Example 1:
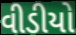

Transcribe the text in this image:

વીડીયો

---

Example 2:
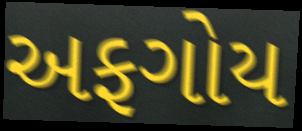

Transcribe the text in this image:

અફગોય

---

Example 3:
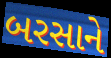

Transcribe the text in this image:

બરસાને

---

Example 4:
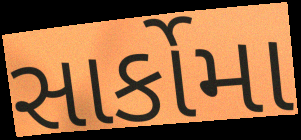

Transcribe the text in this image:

સાર્કોમા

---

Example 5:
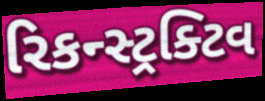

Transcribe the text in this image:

રિકન્સ્ટ્રક્ટિવ